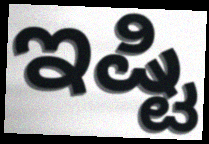
ಇಷ್ಟಿ